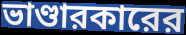
ভাণ্ডারকারের